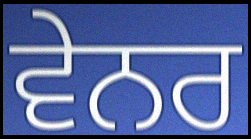
ਵੇਨਰ